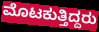
ಮೊಟಕುತ್ತಿದ್ದರು